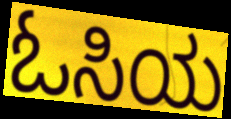
ಓಸಿಯ